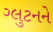
ગ્લુટનને